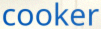
cooker